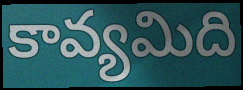
కావ్యమిది